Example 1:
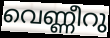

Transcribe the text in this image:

വെണ്ണീറു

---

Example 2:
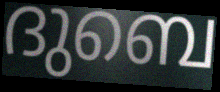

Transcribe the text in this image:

ദുബെ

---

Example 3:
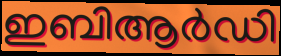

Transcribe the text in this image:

ഇബിആർഡി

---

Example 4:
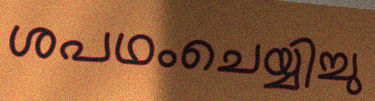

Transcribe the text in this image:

ശപഥംചെയ്യിച്ചു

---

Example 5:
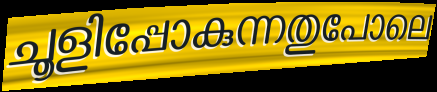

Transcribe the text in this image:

ചൂളിപ്പോകുന്നതുപോലെ